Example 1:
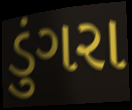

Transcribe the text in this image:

ડુંગરા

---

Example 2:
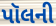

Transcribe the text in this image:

પૉલની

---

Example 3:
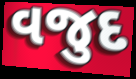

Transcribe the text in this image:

વજુદ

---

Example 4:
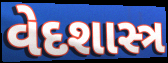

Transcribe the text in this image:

વેદશાસ્ત્ર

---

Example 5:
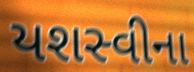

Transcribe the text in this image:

યશસ્વીના